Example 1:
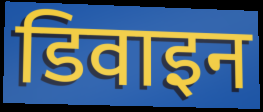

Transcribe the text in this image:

डिवाइन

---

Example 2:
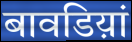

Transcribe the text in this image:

बावडिय़ां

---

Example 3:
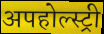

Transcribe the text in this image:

अपहोल्स्ट्री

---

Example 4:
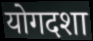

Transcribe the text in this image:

योगदशा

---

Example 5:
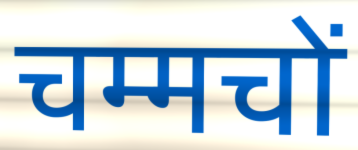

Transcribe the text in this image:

चम्मचों